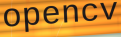
opencv